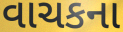
વાચકના